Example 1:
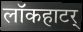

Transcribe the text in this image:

लॉकहाटर्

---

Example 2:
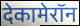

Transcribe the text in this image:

देकामेरॉन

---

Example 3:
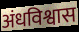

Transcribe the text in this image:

अंधविश्वास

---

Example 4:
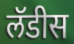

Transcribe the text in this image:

लॅडीस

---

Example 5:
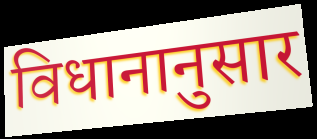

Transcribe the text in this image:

विधानानुसार